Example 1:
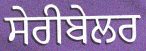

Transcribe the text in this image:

ਸੇਰੀਬੇਲਰ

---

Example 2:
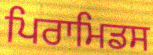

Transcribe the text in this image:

ਪਿਰਾਮਿਡਸ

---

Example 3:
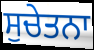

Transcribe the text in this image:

ਸੁਚੇਤਨਾ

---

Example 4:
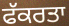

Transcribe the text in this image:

ਫੱਕਰਤਾ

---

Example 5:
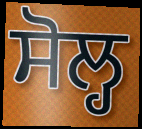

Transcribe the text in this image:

ਸੋਲ੍ਹ